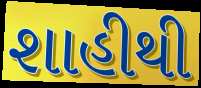
શાહીથી